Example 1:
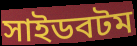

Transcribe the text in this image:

সাইডবটম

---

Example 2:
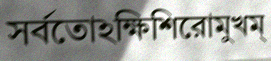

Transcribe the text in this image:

সর্বতোঽক্ষিশিরোমুখম্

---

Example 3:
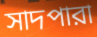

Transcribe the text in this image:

সাদপারা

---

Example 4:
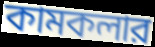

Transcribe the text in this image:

কামকলার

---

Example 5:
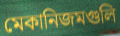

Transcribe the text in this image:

মেকানিজমগুলি